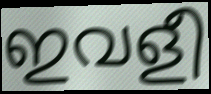
ഇവളീ